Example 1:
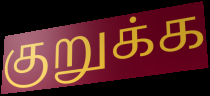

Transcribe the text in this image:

குறுக்க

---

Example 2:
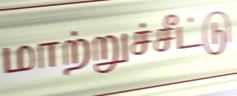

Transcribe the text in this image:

மாற்றுச்சீட்டு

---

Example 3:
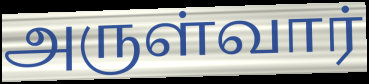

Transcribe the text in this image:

அருள்வார்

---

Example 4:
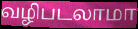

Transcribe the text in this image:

வழிபடலாமா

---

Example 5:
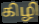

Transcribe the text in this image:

கிழி